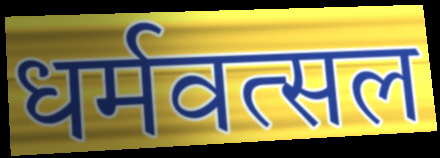
धर्मवत्सल